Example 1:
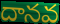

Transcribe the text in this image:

దానవ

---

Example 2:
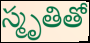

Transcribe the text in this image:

స్మృతితో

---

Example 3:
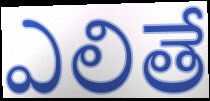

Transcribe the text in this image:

ఎలితే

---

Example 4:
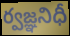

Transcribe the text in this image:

ర్వజ్ఞనిధీ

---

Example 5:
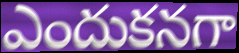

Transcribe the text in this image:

ఎందుకనగా